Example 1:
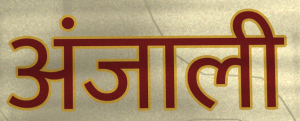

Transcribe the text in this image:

अंजाली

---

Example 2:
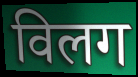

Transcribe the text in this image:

विलग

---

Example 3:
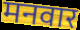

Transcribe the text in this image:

मनवार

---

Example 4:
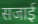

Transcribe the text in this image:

सजाई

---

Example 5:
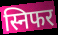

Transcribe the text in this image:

स्निफर